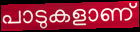
പാടുകളാണ്